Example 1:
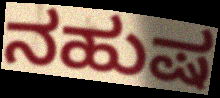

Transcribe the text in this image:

ನಹುಷ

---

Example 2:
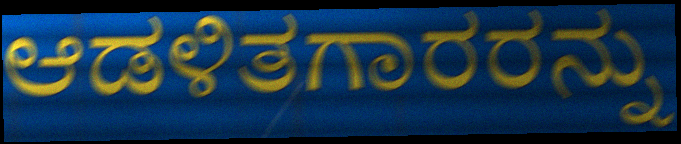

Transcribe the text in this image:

ಆಡಳಿತಗಾರರನ್ನು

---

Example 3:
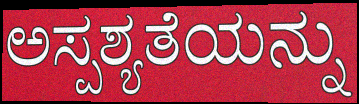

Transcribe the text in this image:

ಅಸ್ಪಶ್ಯತೆಯನ್ನು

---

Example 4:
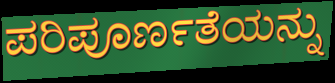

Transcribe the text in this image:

ಪರಿಪೂರ್ಣತೆಯನ್ನು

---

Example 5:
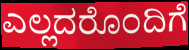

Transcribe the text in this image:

ಎಲ್ಲದರೊಂದಿಗೆ